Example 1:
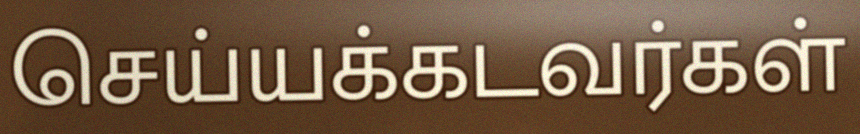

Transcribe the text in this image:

செய்யக்கடவர்கள்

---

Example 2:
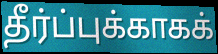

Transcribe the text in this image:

தீர்ப்புக்காகக்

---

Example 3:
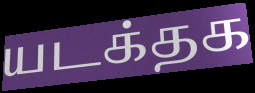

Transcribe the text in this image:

யடக்தக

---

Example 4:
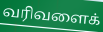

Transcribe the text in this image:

வரிவளைக்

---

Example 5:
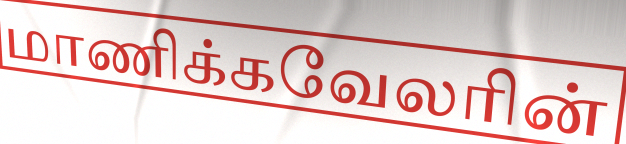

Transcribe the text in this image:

மாணிக்கவேலரின்